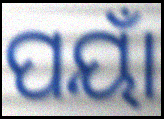
ପୟାଁ